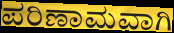
ಪರಿಣಾಮವಾಗಿ